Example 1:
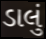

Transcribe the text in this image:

ડાલું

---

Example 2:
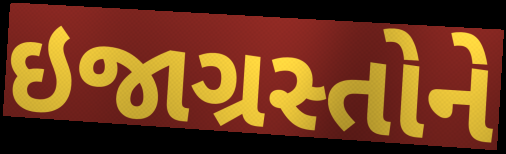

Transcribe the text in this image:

ઇજાગ્રસ્તોને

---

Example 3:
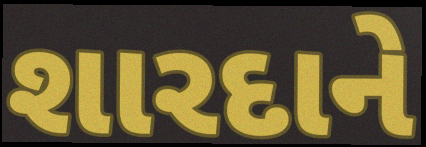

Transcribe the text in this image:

શારદાને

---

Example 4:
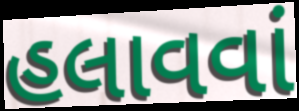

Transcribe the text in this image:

હલાવવાં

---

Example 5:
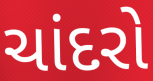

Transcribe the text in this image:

ચાંદરો